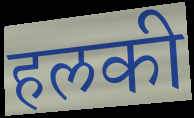
हलकी